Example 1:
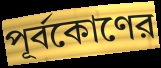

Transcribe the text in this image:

পূর্বকোণের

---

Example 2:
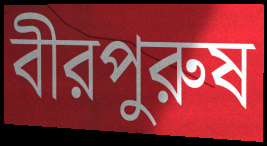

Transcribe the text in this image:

বীরপুরুষ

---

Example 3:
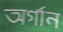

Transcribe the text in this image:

অর্গান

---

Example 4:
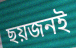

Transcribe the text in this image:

ছয়জনই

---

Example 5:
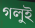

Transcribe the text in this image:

গলুই